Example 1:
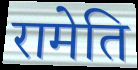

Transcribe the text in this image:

रामेति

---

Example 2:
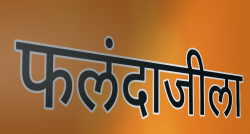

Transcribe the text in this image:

फलंदाजीला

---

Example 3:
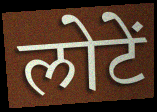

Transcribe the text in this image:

लोटें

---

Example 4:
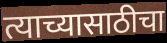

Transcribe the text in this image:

त्याच्यासाठीचा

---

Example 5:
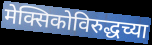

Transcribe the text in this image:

मेक्सिकोविरुद्धच्या